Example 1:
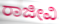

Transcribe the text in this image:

ರಾಜೀವಿ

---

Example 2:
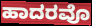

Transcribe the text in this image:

ಹಾದರವೊ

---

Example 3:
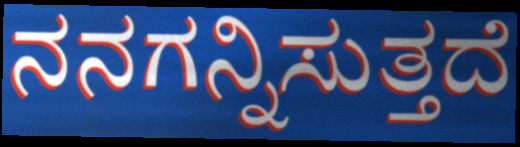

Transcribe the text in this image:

ನನಗನ್ನಿಸುತ್ತದೆ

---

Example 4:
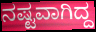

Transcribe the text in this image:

ನಷ್ಟವಾಗಿದ್ದ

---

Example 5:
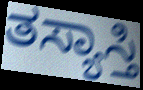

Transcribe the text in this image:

ತಸ್ಯಾಸ್ತಿ